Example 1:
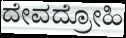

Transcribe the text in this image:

ದೇವದ್ರೋಹಿ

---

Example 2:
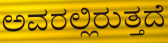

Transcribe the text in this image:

ಅವರಲ್ಲಿರುತ್ತದೆ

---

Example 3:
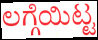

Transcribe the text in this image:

ಲಗ್ಗೆಯಿಟ್ಟ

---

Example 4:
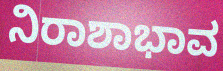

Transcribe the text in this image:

ನಿರಾಶಾಭಾವ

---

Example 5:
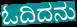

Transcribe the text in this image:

ಓದಿದನು